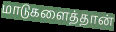
மாடுகளைத்தான்